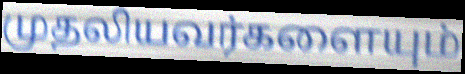
முதலியவர்களையும்